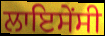
ਲਾਇਸੇਂਸੀ